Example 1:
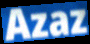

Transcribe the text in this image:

Azaz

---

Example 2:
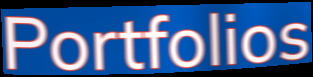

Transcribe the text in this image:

Portfolios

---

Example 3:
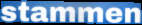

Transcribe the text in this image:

stammen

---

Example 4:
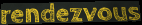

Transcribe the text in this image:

rendezvous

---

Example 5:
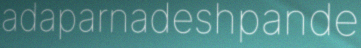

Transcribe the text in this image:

adaparnadeshpande